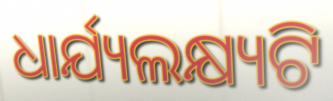
ଧାର୍ଯ୍ୟଲକ୍ଷ୍ୟଟି